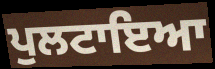
ਪੁਲਟਾਇਆ